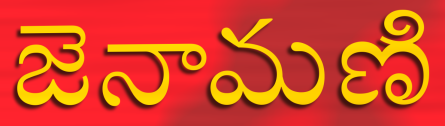
జెనామణి